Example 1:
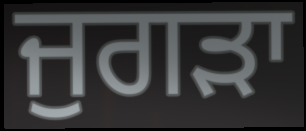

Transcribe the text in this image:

ਜੁਗੜਾ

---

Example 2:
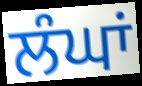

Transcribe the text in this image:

ਲੰਘਾਂ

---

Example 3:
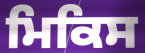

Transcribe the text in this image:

ਮਿਕਿਸ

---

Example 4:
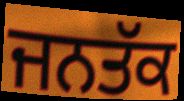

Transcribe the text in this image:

ਜਨਤੱਕ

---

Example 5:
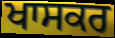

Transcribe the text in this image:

ਖਾਸਕਰ